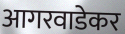
आगरवाडेकर